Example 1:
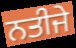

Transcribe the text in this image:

ਨਤੀਜੇ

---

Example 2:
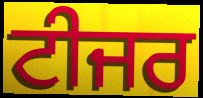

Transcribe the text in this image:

ਟੀਜਰ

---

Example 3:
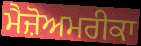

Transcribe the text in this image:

ਮੈਜ਼ੋਅਮਰੀਕਾ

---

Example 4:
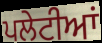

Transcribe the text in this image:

ਪਲੇਟੀਆਂ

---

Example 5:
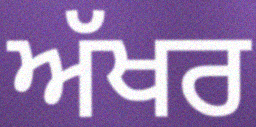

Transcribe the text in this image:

ਅੱਖਰ